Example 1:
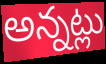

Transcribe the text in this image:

అన్నట్లు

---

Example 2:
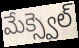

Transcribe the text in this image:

మేక్స్వెల్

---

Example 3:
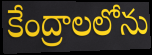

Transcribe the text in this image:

కేంద్రాలలోను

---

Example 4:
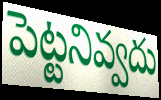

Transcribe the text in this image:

పెట్టనివ్వదు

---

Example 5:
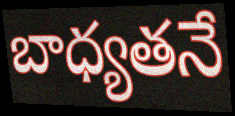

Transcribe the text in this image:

బాధ్యతనే